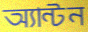
অ্যান্টন